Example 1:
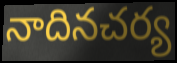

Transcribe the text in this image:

నాదినచర్య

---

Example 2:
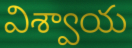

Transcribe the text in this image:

విశ్వాయ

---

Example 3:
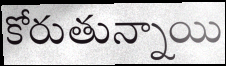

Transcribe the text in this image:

కోరుతున్నాయి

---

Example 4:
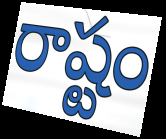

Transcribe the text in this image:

రాష్టం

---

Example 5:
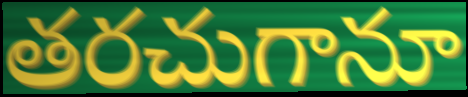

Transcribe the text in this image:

తరచుగానూ